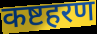
कष्टहरण